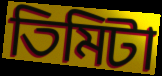
তিমিটা